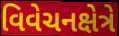
વિવેચનક્ષેત્રે